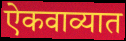
ऐकवाव्यात